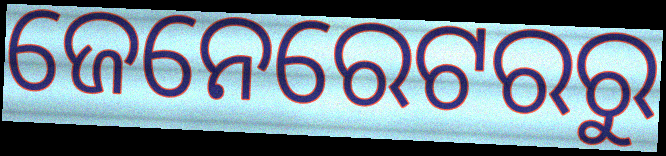
ଜେନେରେଟରରୁ